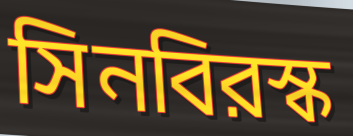
সিনবিরস্ক